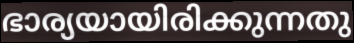
ഭാര്യയായിരിക്കുന്നതു